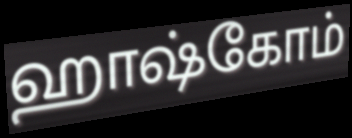
ஹாஷ்கோம்